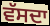
ਵੱਸਦਾ